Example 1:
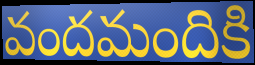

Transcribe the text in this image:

వందమందికి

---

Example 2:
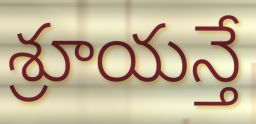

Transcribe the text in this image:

శ్రూయన్తే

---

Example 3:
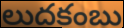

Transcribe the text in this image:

లుదకంబు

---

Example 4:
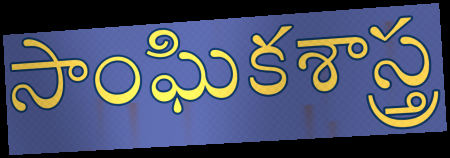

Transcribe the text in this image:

సాంఘికశాస్త్ర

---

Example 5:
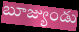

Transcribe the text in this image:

బూజ్యుండు